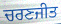
ਚਰਣਜੀਤ